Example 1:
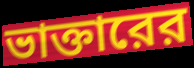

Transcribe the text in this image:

ভাক্তারের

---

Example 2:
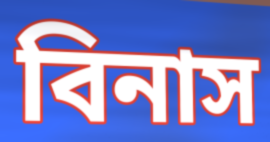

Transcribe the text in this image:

বিনাস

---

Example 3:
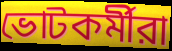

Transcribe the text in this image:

ভোটকর্মীরা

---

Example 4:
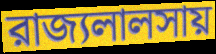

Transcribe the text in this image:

রাজ্যলালসায়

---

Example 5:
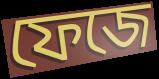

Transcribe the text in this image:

ফেজে